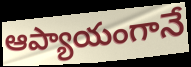
ఆప్యాయంగానే